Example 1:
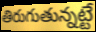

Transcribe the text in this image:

తిరుగుతున్నట్టే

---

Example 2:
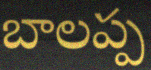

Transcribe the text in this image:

బాలప్ప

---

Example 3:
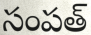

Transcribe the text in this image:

సంపత్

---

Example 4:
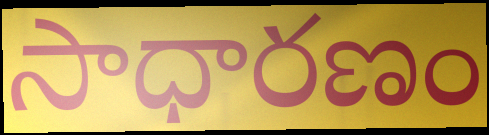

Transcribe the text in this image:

సాధారణం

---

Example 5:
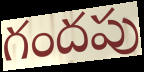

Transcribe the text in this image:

గందపు